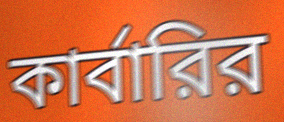
কার্বারির